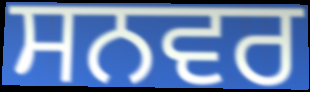
ਸਨਵਰ